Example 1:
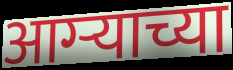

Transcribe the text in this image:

आग्ऱ्याच्या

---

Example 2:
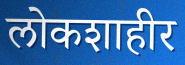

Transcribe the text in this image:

लोकशाहीर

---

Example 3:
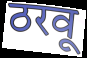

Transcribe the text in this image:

ठरवू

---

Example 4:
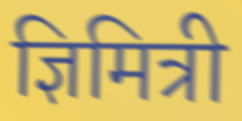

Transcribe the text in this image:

ज्ञिमित्री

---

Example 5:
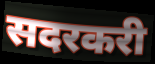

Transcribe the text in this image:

सदरकरी